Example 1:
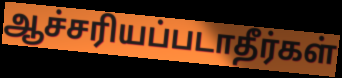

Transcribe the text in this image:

ஆச்சரியப்படாதீர்கள்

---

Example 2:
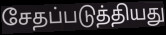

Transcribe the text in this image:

சேதப்படுத்தியது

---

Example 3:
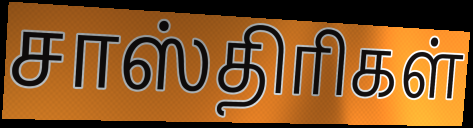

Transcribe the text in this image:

சாஸ்திரிகள்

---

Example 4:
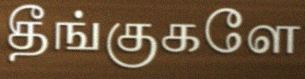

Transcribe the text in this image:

தீங்குகளே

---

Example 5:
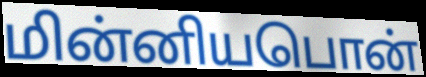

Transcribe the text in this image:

மின்னியபொன்